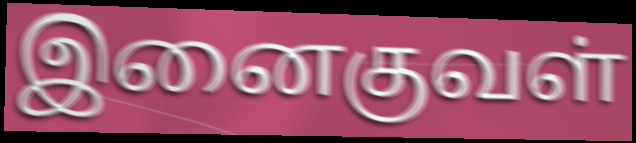
இனைகுவள்